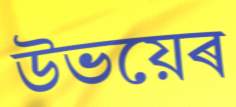
উভয়েৰ